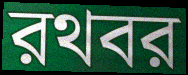
রথবর